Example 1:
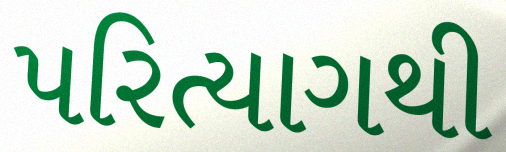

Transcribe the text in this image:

પરિત્યાગથી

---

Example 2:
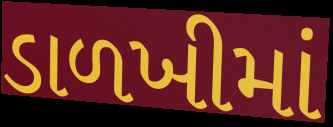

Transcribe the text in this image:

ડાળખીમાં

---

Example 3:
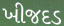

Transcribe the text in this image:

ખીજદડ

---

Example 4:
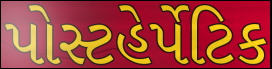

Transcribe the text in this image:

પોસ્ટહેર્પેટિક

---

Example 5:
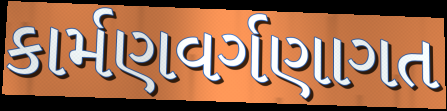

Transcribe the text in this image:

કાર્મણવર્ગણાગત